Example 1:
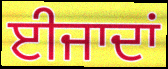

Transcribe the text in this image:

ਈਜਾਦਾਂ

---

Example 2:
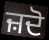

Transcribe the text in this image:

ਜ਼ਦੋ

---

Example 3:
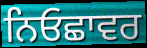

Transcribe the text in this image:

ਨਿਓਛਾਵਰ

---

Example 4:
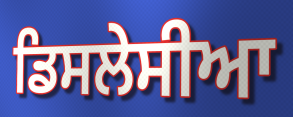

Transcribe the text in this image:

ਡਿਸਲੇਸੀਆ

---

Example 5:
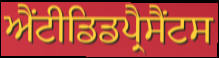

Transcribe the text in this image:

ਐਂਟੀਡਿਡਪ੍ਰੈਸੈਂਟਸ